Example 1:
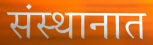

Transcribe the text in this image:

संस्थानात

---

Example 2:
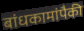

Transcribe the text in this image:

बांधकामांपैकी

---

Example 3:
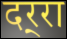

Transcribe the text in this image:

दर्रा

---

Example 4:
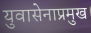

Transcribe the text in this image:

युवासेनाप्रमुख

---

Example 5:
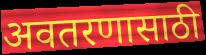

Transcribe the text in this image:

अवतरणासाठी